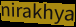
nirakhya